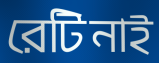
রেটিনাই